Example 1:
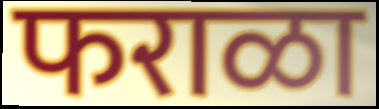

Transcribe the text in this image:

फराळा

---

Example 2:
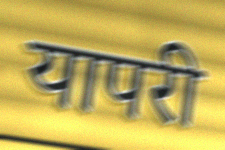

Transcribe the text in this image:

यापरी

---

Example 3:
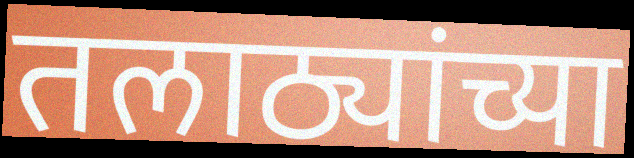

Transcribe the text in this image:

तलाठ्यांच्या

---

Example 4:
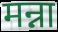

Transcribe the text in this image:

मन्ना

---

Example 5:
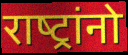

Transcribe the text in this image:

राष्ट्रांनो